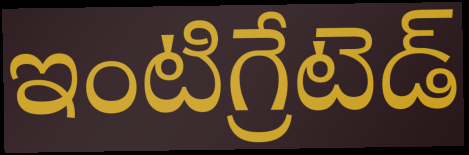
ఇంటిగ్రేటెడ్